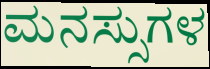
ಮನಸ್ಸುಗಳ